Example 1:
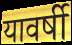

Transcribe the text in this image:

यावर्षी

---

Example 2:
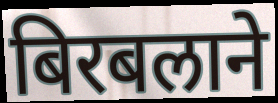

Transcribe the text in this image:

बिरबलाने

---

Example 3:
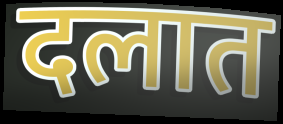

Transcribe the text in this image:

दलात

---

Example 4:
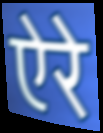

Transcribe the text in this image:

ऐरे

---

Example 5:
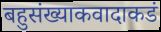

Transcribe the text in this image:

बहुसंख्याकवादाकडं